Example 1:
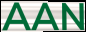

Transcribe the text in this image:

AAN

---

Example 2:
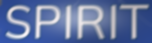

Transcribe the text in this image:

SPIRIT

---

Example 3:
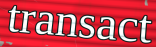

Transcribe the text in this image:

transact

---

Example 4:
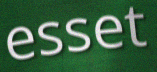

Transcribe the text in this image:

esset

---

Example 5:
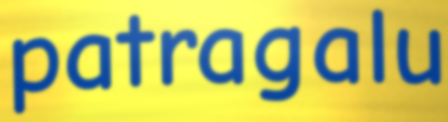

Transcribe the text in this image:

patragalu